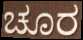
ಚೂರ